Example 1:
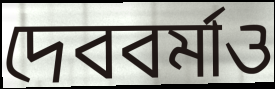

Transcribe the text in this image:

দেববর্মাও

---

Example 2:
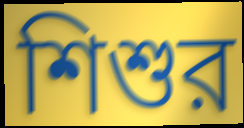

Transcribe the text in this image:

শিশুর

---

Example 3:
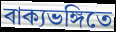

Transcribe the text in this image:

বাক্যভঙ্গিতে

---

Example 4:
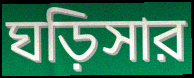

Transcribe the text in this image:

ঘড়িসার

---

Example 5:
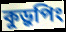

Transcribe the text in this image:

কুড়ুপিং